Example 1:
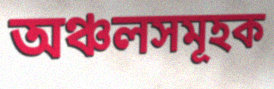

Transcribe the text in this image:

অঞ্চলসমূহক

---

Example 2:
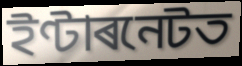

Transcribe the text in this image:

ইণ্টাৰনেটত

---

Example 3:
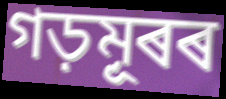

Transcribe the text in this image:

গড়মূৰৰ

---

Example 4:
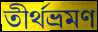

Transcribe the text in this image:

তীৰ্থভ্ৰমণ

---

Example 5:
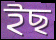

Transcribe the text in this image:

ইছ